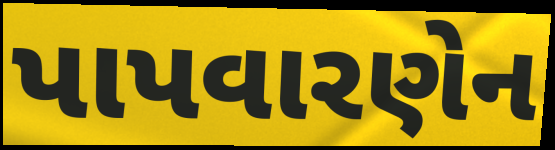
પાપવારણેન